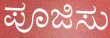
ಪೂಜಿಸು